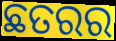
ଛତରର